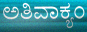
ಅತಿವಾಕ್ಯಂ